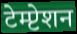
टेम्प्टेशन